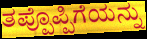
ತಪ್ಪೊಪ್ಪಿಗೆಯನ್ನು